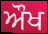
ਔਖ